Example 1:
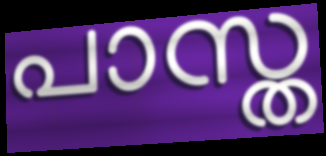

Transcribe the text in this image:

പാസ്ത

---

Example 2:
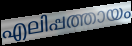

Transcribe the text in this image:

എലിപ്പത്തായം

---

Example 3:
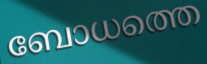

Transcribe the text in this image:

ബോധത്തെ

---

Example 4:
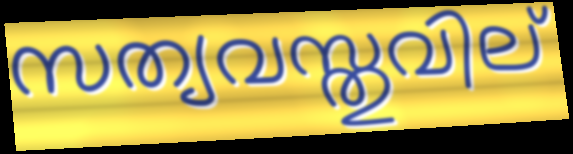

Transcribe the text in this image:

സത്യവസ്തുവില്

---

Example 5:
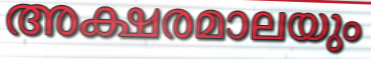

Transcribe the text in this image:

അക്ഷരമാലയും